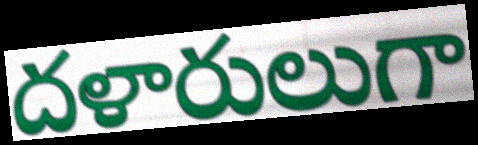
దళారులుగా